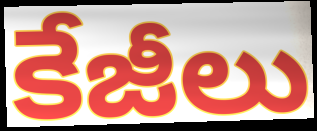
కేజీలు